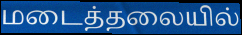
மடைத்தலையில்